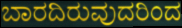
ಬಾರದಿರುವುದರಿಂದ